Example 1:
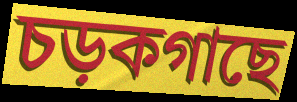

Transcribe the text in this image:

চড়কগাছে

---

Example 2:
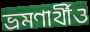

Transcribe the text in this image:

ভ্রমণার্থীও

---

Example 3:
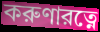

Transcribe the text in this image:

করুণারত্নে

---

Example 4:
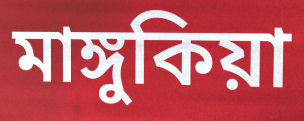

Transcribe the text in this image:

মাঙ্গুকিয়া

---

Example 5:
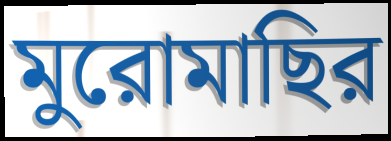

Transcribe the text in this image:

মুরোমাছির